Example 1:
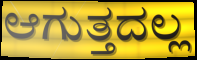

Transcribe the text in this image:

ಆಗುತ್ತದಲ್ಲ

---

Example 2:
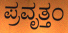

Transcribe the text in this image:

ಪ್ರವೃತ್ತಂ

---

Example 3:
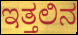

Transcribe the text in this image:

ಇತ್ತಲಿನ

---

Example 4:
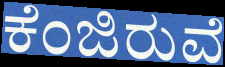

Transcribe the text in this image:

ಕೆಂಜಿರುವೆ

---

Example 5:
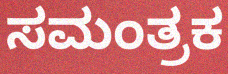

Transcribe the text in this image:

ಸಮಂತ್ರಕ